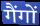
गैंगों